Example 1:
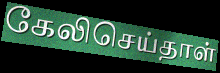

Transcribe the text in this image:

கேலிசெய்தாள்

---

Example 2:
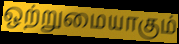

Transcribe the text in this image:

ஒற்றுமையாகும்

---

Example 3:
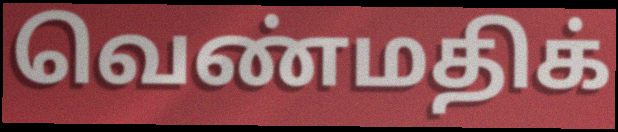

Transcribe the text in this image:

வெண்மதிக்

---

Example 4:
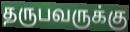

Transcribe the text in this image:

தருபவருக்கு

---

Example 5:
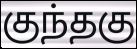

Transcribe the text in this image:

குந்தகு